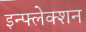
इन्फ्लेक्शन